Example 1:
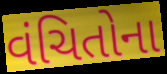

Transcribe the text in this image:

વંચિતોના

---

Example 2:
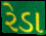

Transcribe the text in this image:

રેડા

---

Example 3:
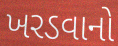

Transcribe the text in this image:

ખરડવાનો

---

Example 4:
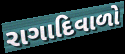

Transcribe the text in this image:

રાગાદિવાળો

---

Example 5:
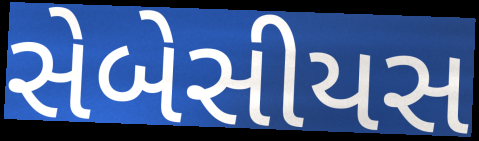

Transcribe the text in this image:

સેબેસીયસ